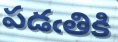
పడఁతికి